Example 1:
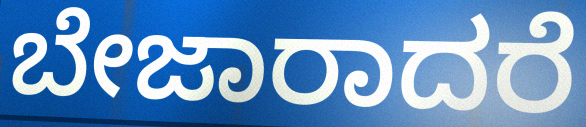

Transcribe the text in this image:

ಬೇಜಾರಾದರೆ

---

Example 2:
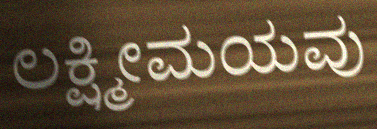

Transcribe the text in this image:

ಲಕ್ಷ್ಮೀಮಯವು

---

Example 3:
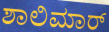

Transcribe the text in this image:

ಶಾಲಿಮಾರ್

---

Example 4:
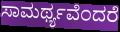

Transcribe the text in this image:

ಸಾಮರ್ಥ್ಯವೆಂದರೆ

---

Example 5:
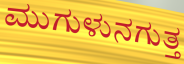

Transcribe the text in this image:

ಮುಗುಳುನಗುತ್ತ